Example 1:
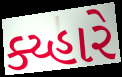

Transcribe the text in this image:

ક્ય્હારે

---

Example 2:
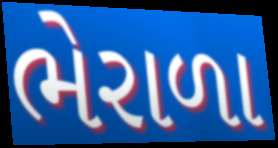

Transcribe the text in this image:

ભેરાળા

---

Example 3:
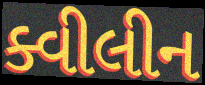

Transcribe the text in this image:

ક્વીલીન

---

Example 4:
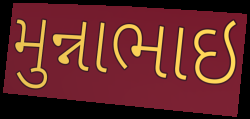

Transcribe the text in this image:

મુન્નાભાઇ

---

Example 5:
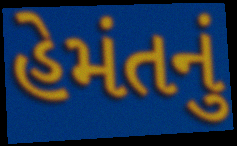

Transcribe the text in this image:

હેમંતનું